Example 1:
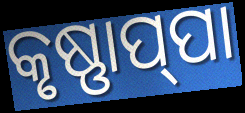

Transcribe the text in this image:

କୃଷ୍ଣାପ୍‌ପା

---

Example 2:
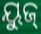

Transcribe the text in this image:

ୟୁଜ୍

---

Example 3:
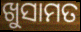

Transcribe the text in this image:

ଖୁସାମତ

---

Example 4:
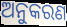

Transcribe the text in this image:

ଅନୁକରଣ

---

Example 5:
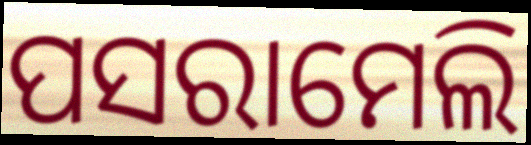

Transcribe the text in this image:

ପସରାମେଲି